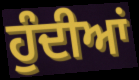
ਹੁੰਦੀਆਂ